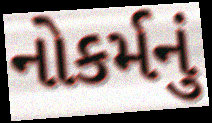
નોકર્મનું